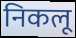
निकलू